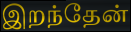
இறந்தேன்